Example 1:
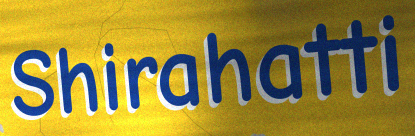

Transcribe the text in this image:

Shirahatti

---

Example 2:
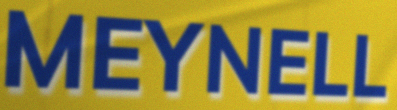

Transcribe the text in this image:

MEYNELL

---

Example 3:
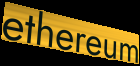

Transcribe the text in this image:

ethereum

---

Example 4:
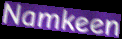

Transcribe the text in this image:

Namkeen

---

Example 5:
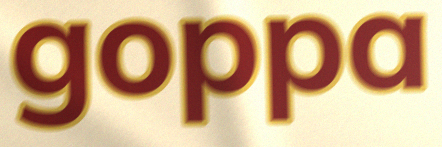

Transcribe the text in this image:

goppa